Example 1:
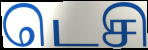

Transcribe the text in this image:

டெசி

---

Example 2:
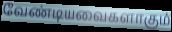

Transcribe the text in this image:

வேண்டியவைகளாகும்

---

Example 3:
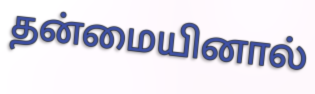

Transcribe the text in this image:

தன்மையினால்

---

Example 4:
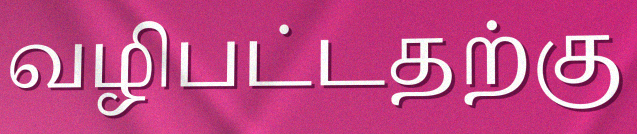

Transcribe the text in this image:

வழிபட்டதற்கு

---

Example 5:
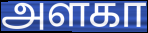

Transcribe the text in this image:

அளகா